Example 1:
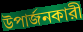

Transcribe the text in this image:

উপার্জনকারী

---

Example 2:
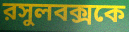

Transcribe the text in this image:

রসুলবক্সকে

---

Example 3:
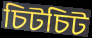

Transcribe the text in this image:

চিটচিট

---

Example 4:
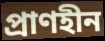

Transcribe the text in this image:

প্রাণহীন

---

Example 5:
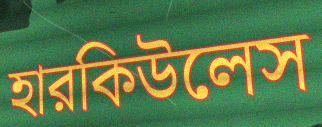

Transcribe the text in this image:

হারকিউলেস